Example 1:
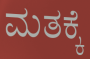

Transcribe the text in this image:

ಮತಕ್ಕೆ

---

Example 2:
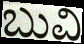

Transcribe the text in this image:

ಬುವಿ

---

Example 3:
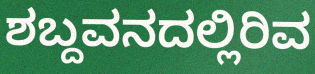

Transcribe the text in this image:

ಶಬ್ದವನದಲ್ಲಿರಿವ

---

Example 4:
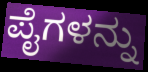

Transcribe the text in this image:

ಪೈಗಳನ್ನು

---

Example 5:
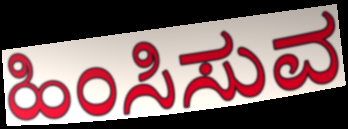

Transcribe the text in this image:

ಹಿಂಸಿಸುವ